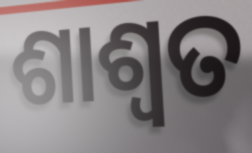
ଶାଶ୍ଵତ